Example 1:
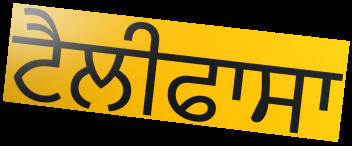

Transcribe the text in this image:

ਟੈਲੀਫਾਸਾ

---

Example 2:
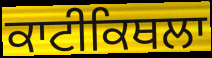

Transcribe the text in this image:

ਕਾਟੀਕਿਥਲਾ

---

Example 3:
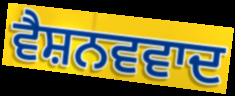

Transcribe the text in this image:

ਵੈਸ਼ਨਵਵਾਦ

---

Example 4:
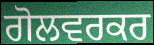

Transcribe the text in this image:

ਗੋਲਵਰਕਰ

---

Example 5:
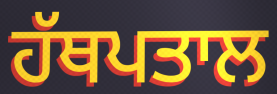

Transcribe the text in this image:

ਹੱਥਪਤਾਲ